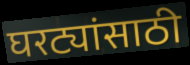
घरट्यांसाठी